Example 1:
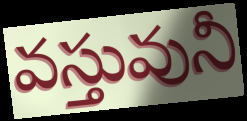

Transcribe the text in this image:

వస్తువునీ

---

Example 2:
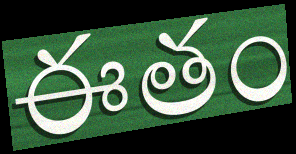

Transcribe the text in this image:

ఈతం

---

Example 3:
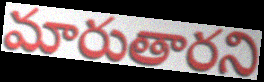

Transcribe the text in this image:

మారుతారని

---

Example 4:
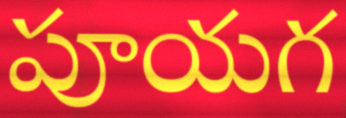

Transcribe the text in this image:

పూయగ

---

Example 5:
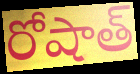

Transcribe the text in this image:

రోషాత్